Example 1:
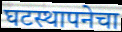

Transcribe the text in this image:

घटस्थापनेचा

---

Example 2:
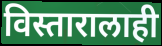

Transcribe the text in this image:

विस्तारालाही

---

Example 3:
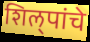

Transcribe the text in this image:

शिल्पांचे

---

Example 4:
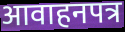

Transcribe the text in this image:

आवाहनपत्र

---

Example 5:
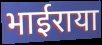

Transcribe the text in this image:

भाईराया